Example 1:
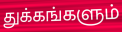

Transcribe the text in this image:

துக்கங்களும்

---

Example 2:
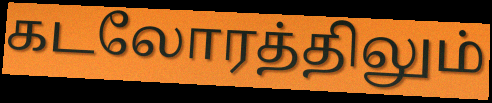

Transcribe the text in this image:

கடலோரத்திலும்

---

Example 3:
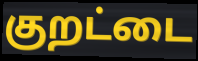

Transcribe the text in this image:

குறட்டை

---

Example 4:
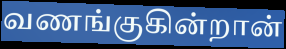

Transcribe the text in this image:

வணங்குகின்றான்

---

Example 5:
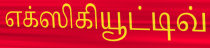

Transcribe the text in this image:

எக்ஸிகியூட்டிவ்